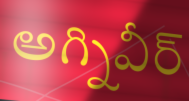
అగ్నివీర్